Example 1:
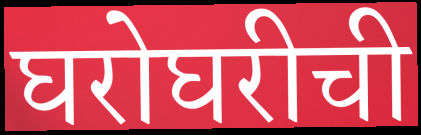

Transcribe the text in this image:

घरोघरीची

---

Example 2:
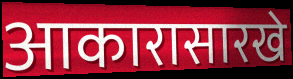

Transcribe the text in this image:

आकारासारखे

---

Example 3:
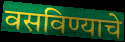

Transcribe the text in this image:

वसविण्याचे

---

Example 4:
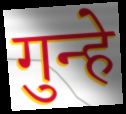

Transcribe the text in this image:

गुन्हे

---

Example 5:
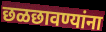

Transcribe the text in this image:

छळछावण्यांना